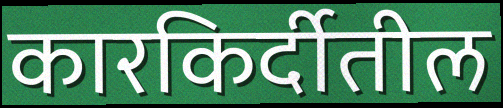
कारकिर्दीतील